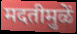
मदतीमुळें